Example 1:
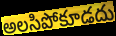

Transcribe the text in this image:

అలసిపోకూడదు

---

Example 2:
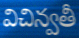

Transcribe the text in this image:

విచిన్వతీ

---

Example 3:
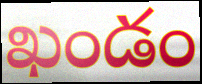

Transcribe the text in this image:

ఖండం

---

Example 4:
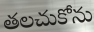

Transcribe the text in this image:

తలచుకోను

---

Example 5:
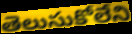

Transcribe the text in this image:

తెలుసుకోలేని